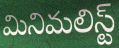
మినిమలిస్ట్